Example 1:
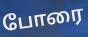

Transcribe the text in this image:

போரை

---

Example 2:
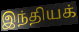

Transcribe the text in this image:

இந்தியக்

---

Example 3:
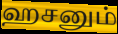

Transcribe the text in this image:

ஹசனும்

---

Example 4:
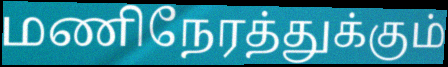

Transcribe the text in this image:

மணிநேரத்துக்கும்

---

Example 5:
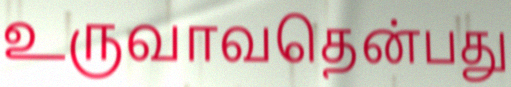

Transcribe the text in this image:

உருவாவதென்பது